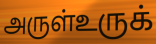
அருள்உருக்